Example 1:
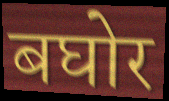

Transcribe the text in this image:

बघोर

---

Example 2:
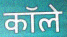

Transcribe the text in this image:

कॉले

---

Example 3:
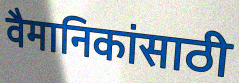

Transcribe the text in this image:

वैमानिकांसाठी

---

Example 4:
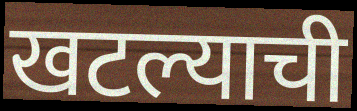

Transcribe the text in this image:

खटल्याची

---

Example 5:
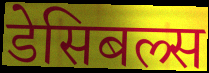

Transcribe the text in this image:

डेसिबल्स